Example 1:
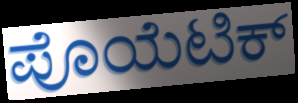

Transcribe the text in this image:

ಪೊಯೆಟಿಕ್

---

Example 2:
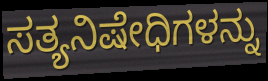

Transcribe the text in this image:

ಸತ್ಯನಿಷೇಧಿಗಳನ್ನು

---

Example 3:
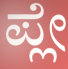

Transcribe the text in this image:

ಪ್ಲೇ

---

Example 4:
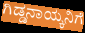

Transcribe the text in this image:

ಗಿಡ್ಡನಾಯ್ಕನಿಗೆ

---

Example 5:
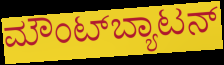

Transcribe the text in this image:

ಮೌಂಟ್‌ಬ್ಯಾಟನ್